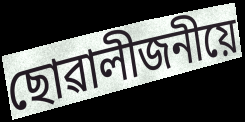
ছোৱালীজনীয়ে